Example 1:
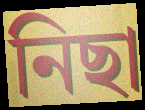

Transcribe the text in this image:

নিছা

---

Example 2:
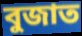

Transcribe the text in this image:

বুজাত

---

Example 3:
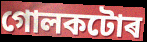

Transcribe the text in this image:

গোলকটোৰ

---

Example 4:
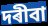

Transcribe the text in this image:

দৰীবা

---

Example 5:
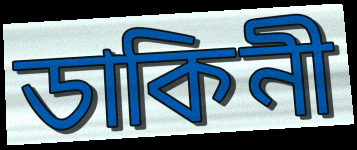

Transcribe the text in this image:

ডাকিনী